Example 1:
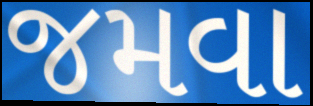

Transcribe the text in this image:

જમવા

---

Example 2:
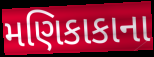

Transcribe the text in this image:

મણિકાકાના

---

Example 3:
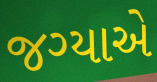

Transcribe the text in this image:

જગ્યાએ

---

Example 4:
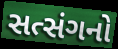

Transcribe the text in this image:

સત્સંગનો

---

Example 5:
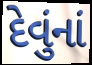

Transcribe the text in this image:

દેવુંનાં